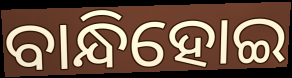
ବାନ୍ଧିହୋଇ